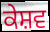
ਕੇਸ਼ਵ